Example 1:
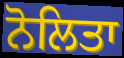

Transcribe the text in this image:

ਨੋਲਿਤਾ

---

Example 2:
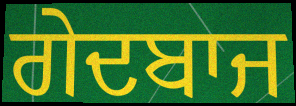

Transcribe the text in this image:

ਗੇਦਬਾਜ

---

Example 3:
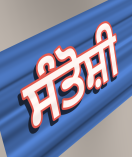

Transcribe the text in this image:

ਸੰਤੋਸ਼ੀ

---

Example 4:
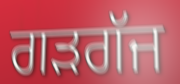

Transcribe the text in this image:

ਗਡ਼ਗੱਜ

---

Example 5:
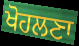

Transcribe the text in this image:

ਖੋਹਲਣਾ